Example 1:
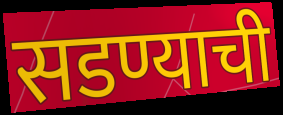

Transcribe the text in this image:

सडण्याची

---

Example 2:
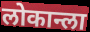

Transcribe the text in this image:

लोकान्ला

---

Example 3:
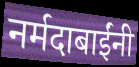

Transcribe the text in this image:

नर्मदाबाईंनी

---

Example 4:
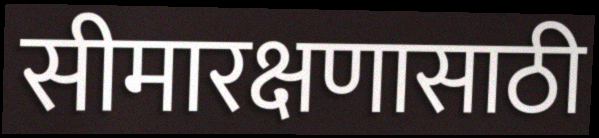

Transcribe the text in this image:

सीमारक्षणासाठी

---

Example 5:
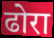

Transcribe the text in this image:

ढोरा